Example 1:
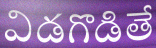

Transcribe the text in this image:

విడగొడితే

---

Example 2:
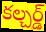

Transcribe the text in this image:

కల్చర్డ్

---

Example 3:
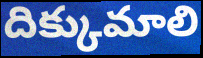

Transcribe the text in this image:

దిక్కుమాలి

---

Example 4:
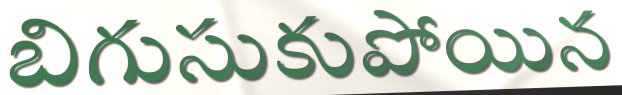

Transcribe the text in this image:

బిగుసుకుపోయిన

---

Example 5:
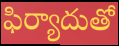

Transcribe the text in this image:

ఫిర్యాదుతో